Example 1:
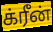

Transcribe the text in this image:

க்ரீன்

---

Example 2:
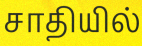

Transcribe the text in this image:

சாதியில்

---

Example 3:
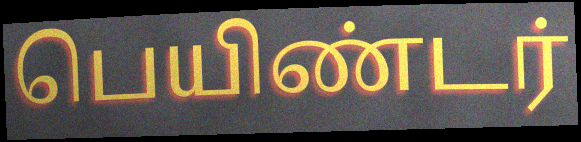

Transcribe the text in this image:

பெயிண்டர்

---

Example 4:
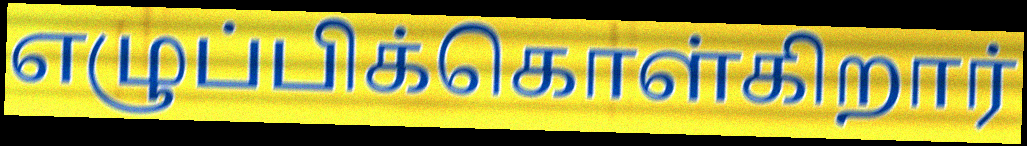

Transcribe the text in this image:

எழுப்பிக்கொள்கிறார்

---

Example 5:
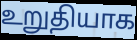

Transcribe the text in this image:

உறுதியாக